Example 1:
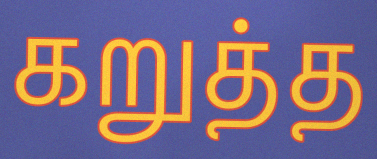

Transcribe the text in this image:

கறுத்த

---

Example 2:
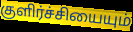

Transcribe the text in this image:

குளிர்ச்சியையும்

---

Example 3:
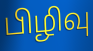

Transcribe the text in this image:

பிழிவு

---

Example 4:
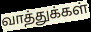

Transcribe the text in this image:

வாத்துக்கள்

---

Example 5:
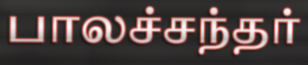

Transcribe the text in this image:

பாலச்சந்தர்